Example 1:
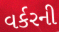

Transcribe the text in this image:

વર્કરની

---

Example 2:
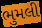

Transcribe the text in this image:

ભુમલી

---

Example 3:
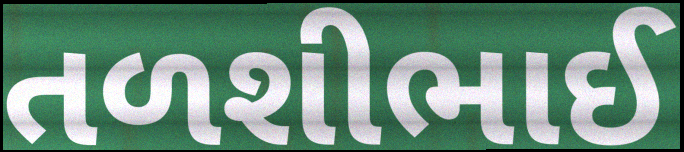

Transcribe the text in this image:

તળશીભાઈ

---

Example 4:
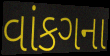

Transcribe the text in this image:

વાંકગના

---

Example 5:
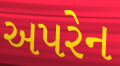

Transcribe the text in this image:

અપરેન